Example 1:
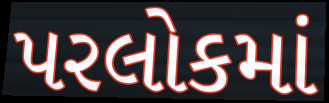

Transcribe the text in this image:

પરલોકમાં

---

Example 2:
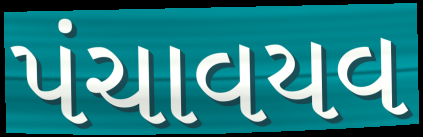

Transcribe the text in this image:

પંચાવયવ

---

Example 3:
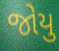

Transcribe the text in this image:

જોયુ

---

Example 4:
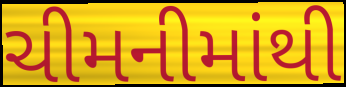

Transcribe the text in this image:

ચીમનીમાંથી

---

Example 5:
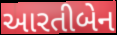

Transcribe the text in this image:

આરતીબેન